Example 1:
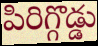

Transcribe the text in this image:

పిరిగ్గొడ్డు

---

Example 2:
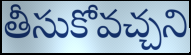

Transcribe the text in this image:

తీసుకోవచ్చని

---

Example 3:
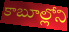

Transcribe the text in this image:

కాబూల్లోని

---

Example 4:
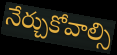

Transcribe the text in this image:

నేర్చుకోవాల్సి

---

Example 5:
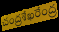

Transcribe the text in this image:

చంద్రశేఖరేంద్ర